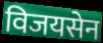
विजयसेन